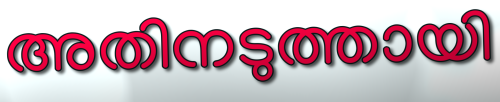
അതിനടുത്തായി